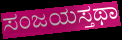
ಸಂಜಯಸ್ತಥಾ